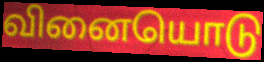
வினையொடு